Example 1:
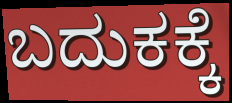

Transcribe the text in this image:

ಬದುಕಕ್ಕೆ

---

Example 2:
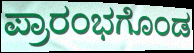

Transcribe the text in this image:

ಪ್ರಾರಂಭಗೊಂಡ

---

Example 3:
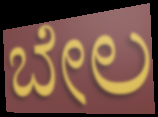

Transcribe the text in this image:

ಬೇಲ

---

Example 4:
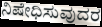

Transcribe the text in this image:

ನಿಷೇಧಿಸುವುದರ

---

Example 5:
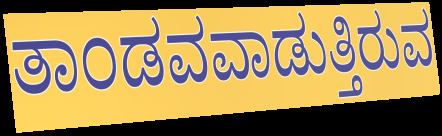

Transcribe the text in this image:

ತಾಂಡವವಾಡುತ್ತಿರುವ